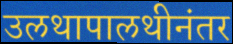
उलथापालथीनंतर